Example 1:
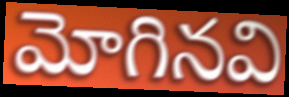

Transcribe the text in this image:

మోగినవి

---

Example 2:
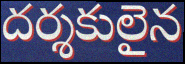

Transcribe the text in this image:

దర్శకులైన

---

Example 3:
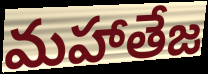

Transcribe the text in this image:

మహాతేజ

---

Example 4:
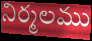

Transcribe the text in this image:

నిర్మలము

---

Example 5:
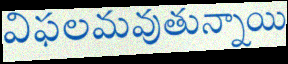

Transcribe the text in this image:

విఫలమవుతున్నాయి